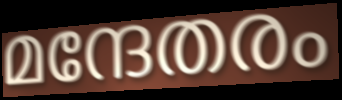
മന്ദേതരം